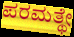
ಪರಮತ್ಥೇ